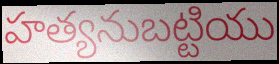
హత్యనుబట్టియు